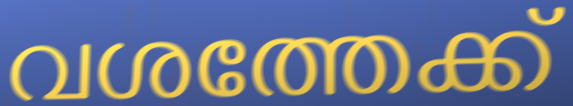
വശത്തേക്ക്